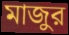
মাজুর